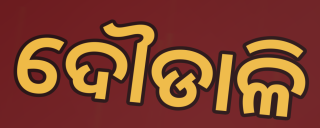
ଦୌଡାଳି